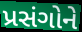
પ્રસંગોને